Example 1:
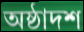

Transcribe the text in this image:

অষ্ঠাদশ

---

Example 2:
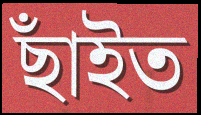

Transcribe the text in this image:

ছাঁইত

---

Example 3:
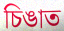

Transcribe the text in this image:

চিঙাত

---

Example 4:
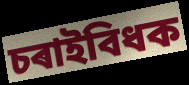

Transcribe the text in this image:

চৰাইবিধক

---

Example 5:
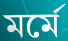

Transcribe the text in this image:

মৰ্মে